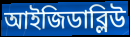
আইজিডাব্লিউ